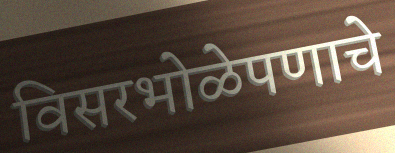
विसरभोळेपणाचे